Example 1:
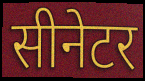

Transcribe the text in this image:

सीनेटर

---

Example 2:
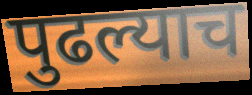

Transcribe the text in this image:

पुढल्याच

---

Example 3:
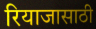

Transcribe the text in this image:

रियाजासाठी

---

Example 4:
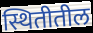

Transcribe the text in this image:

स्थितीतील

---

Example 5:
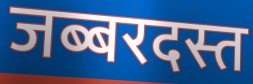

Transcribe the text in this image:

जब्बरदस्त